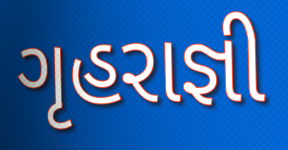
ગૃહરાજ્ઞી